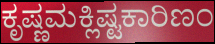
ಕೃಷ್ಣಮಕ್ಲಿಷ್ಟಕಾರಿಣಂ